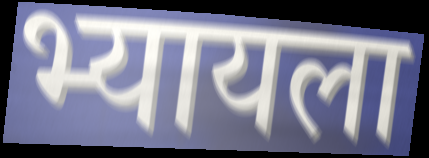
भ्यायला